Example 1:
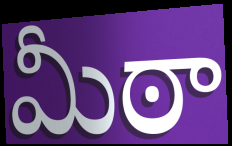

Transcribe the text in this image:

మీఠా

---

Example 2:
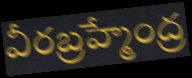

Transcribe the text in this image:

వీరబ్రహ్మేంద్ర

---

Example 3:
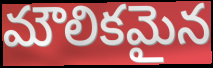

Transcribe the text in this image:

మౌలికమైన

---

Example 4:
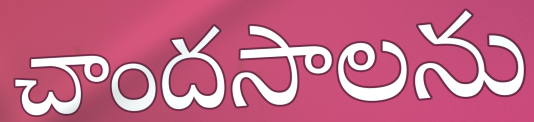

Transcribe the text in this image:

చాందసాలను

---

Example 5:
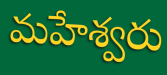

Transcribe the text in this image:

మహేశ్వరు